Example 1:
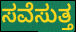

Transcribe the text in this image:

ಸವೆಸುತ್ತ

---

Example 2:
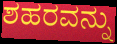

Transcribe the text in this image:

ಶಹರವನ್ನು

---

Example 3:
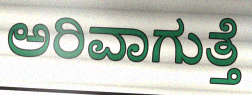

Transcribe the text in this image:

ಅರಿವಾಗುತ್ತೆ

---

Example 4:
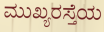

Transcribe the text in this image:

ಮುಖ್ಯರಸ್ತೆಯ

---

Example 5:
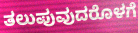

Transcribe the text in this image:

ತಲುಪುವುದರೊಳಗೆ